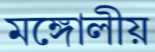
মঙ্গোলীয়